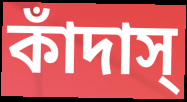
কাঁদাস্